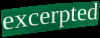
excerpted